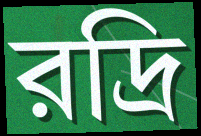
রদ্রি